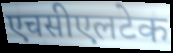
एचसीएलटेक